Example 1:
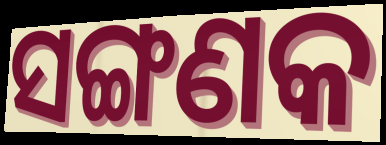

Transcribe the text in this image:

ସଙ୍ଗଣକ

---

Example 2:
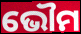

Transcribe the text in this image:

ଭୌମ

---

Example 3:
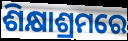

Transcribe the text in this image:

ଶିକ୍ଷାଶ୍ରମରେ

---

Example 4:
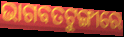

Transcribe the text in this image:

ଭାଗବତଟୁଙ୍ଗୀରେ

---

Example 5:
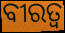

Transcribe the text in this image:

ବୀରତ୍ୱ